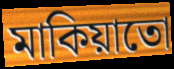
মাকিয়াতো